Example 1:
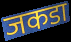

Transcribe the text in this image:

जकडा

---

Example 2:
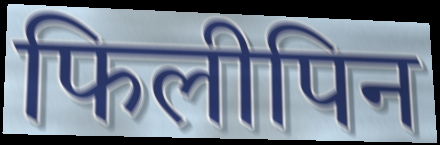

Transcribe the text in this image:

फिलीपिन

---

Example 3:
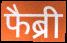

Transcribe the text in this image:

फैब्री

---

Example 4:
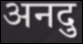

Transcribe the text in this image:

अनदु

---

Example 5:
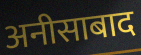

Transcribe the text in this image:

अनीसाबाद